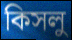
কিসলু